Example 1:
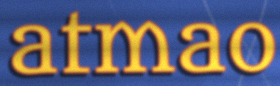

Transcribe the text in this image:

atmao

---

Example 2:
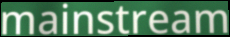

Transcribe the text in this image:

mainstream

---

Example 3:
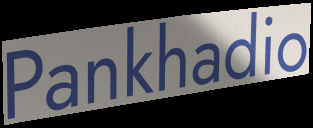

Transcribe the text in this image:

Pankhadio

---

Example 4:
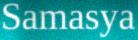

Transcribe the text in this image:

Samasya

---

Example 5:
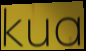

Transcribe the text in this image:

kua